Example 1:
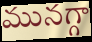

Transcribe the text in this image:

మునగ్గా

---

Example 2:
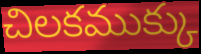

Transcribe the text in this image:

చిలకముక్కు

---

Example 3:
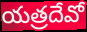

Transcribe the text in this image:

యత్రదేవో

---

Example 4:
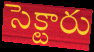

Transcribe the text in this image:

సెక్టారు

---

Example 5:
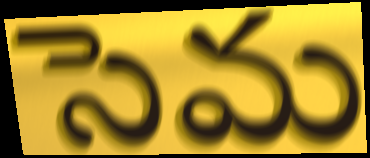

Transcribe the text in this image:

సెమ